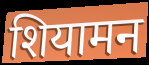
शियामन